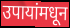
उपायांमधून